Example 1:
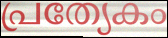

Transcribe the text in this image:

പ്രത്യേകം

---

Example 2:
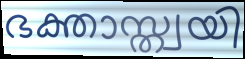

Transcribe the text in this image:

ഭക്താസ്ത്വയി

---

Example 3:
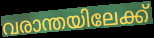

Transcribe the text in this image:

വരാന്തയിലേക്ക്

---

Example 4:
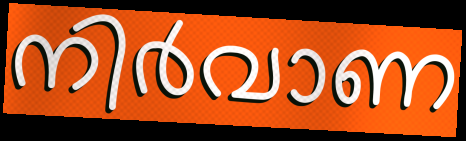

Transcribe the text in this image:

നിർവാണ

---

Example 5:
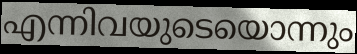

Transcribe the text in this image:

എന്നിവയുടെയൊന്നും